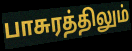
பாசுரத்திலும்